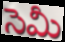
సెమీ